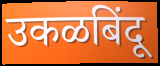
उकळबिंदू